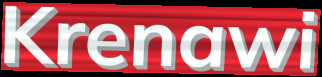
Krenawi